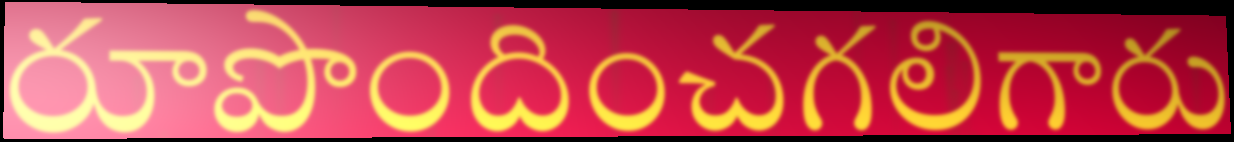
రూపొందించగలిగారు